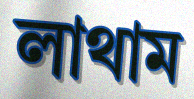
লাথাম